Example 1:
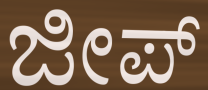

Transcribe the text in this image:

ಜೀಪ್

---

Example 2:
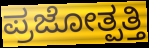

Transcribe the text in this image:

ಪ್ರಜೋತ್ಪತ್ತಿ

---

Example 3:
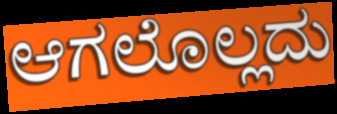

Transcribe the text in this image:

ಆಗಲೊಲ್ಲದು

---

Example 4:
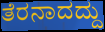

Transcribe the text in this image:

ತೆರನಾದದ್ದು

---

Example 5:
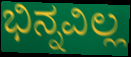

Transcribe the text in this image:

ಭಿನ್ನವಿಲ್ಲ